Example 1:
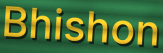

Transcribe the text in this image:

Bhishon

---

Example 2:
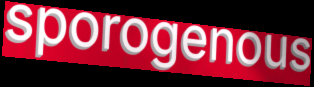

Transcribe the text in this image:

sporogenous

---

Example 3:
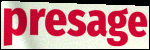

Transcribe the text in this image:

presage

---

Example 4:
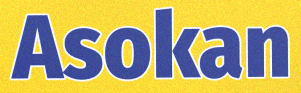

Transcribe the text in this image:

Asokan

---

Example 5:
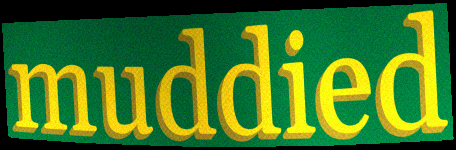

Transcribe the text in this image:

muddied